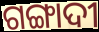
ଗଙ୍ଗାଦୀ